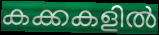
കക്കകളിൽ